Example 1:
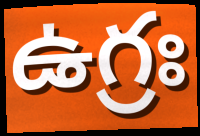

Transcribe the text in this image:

ఉగ్రః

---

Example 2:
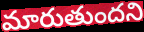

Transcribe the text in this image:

మారుతుందని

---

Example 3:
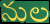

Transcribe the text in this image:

నుల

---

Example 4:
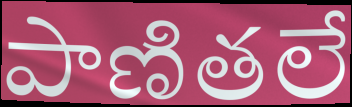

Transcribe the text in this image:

పాణితలే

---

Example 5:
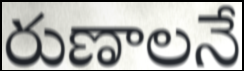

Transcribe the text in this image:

రుణాలనే